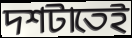
দশটাতেই